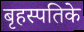
बृहस्पतिके